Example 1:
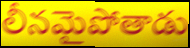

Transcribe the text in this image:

లీనమైపోతాడు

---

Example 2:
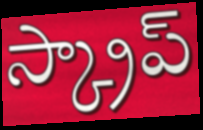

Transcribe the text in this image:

స్క్రాప్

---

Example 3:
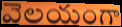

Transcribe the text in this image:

వెలయంగా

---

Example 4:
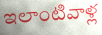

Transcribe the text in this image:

ఇలాంటివాళ్ల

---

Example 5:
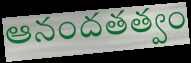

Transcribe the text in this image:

ఆనందతత్వం